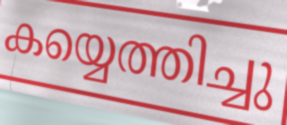
കയ്യെത്തിച്ചു